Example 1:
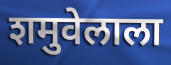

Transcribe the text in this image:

शमुवेलाला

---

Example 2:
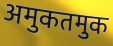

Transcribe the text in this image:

अमुकतमुक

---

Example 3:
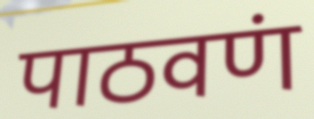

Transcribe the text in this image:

पाठवणं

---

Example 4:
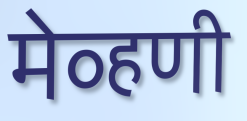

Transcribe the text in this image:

मेव्हणी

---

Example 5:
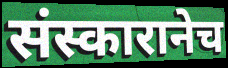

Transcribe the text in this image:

संस्कारानेच